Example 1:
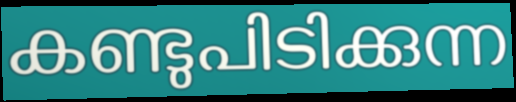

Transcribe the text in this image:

കണ്ടുപിടിക്കുന്ന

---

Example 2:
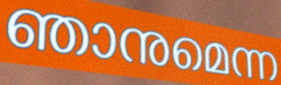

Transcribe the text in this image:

ഞാനുമെന്ന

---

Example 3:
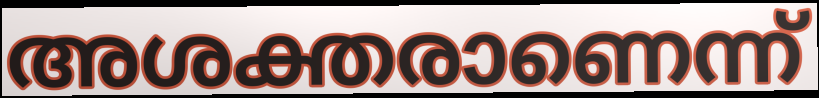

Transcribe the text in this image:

അശക്തരാണെന്ന്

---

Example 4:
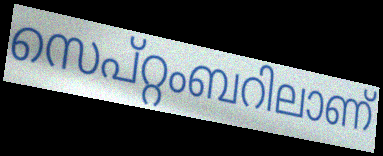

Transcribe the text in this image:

സെപ്റ്റംബറിലാണ്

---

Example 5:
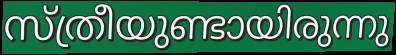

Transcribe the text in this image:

സ്ത്രീയുണ്ടായിരുന്നു